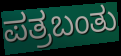
ಪತ್ರಬಂತು